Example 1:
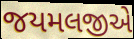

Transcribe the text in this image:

જયમલજીએ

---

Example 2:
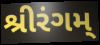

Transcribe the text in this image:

શ્રીરંગમ્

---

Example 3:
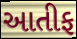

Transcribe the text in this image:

આતીફ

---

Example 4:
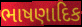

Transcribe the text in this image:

ભાષણાદિક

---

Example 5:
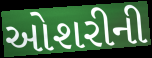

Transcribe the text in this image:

ઓશરીની